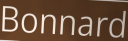
Bonnard